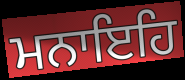
ਮਨਾਇਹਿ